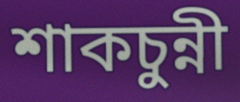
শাকচুন্নী